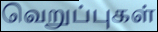
வெறுப்புகள்